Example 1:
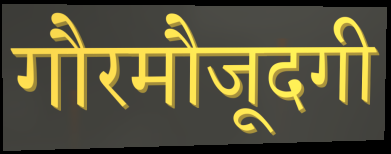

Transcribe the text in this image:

गौरमौजूदगी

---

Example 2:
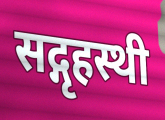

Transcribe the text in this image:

सद्गृहस्थी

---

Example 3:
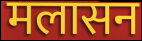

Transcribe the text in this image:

मलासन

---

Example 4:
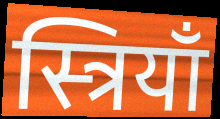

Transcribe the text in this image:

स्त्रियाँ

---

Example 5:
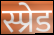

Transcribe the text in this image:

स्‍प्रेड